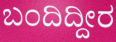
ಬಂದಿದ್ದೀರ